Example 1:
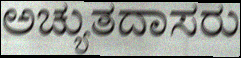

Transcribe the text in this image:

ಅಚ್ಯುತದಾಸರು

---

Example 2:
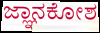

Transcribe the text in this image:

ಜ್ಞಾನಕೋಶ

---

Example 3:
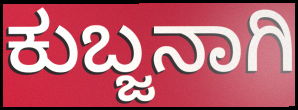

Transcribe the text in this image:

ಕುಬ್ಜನಾಗಿ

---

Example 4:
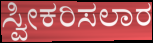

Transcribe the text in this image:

ಸ್ವೀಕರಿಸಲಾರ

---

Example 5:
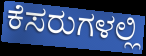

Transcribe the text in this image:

ಕೆಸರುಗಳಲ್ಲಿ